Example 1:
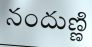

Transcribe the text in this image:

నందుణ్ణి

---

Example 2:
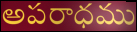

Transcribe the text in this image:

అపరాధము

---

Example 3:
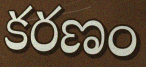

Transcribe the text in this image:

కరణం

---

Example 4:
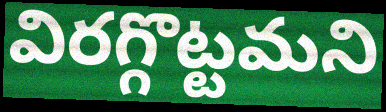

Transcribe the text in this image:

విరగ్గొట్టమని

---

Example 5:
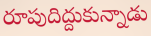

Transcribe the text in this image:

రూపుదిద్దుకున్నాడు